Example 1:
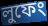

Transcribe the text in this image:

লুফেং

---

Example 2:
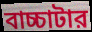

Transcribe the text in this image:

বাচ্চাটার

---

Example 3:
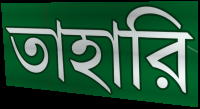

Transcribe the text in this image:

তাহারি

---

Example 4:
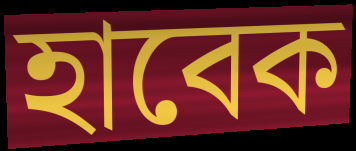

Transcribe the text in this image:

হাবেক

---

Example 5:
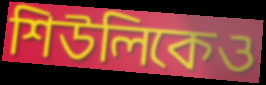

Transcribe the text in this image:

শিউলিকেও